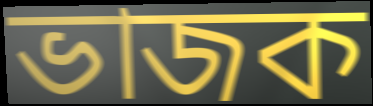
ভাজক